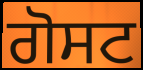
ਗੋਸਟ